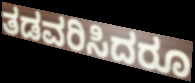
ತಡವರಿಸಿದರೂ